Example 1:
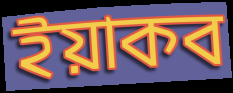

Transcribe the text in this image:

ইয়াকব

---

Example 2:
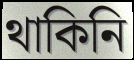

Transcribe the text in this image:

থাকিনি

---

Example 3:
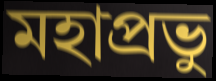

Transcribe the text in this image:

মহাপ্রভু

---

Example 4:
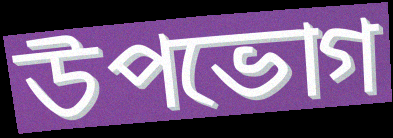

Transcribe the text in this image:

উপভোগ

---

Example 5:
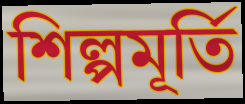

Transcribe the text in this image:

শিল্পমূর্তি